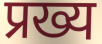
प्रख्य